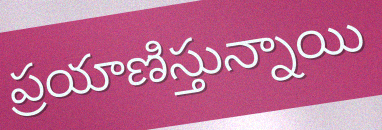
ప్రయాణిస్తున్నాయి